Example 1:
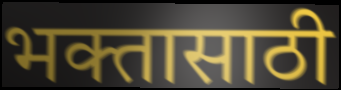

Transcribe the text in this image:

भक्तासाठी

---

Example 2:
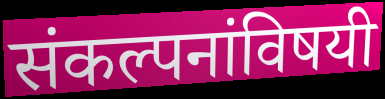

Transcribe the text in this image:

संकल्पनांविषयी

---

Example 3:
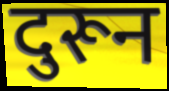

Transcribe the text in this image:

दुरून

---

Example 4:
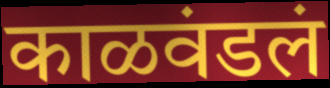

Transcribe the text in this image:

काळवंडलं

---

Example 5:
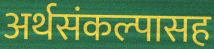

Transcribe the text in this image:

अर्थसंकल्पासह